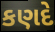
કણદે